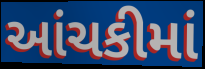
આંચકીમાં